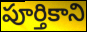
పూర్తికాని